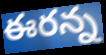
ఈరన్న